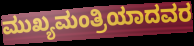
ಮುಖ್ಯಮಂತ್ರಿಯಾದವರ